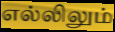
எல்லிலும்